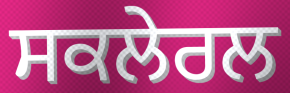
ਸਕਲੇਰਲ